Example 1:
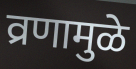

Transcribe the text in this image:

व्रणामुळे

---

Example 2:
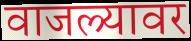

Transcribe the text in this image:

वाजल्यावर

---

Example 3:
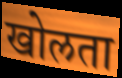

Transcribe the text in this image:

खोलता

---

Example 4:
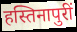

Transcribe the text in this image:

हस्तिनापुरीं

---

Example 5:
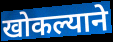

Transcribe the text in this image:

खोकल्याने